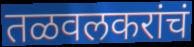
तळवलकरांचं